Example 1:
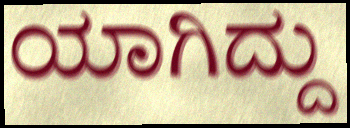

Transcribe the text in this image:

ಯಾಗಿದ್ದು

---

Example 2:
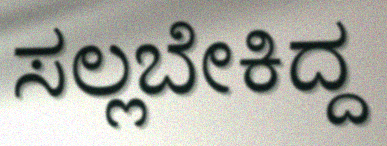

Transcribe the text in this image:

ಸಲ್ಲಬೇಕಿದ್ದ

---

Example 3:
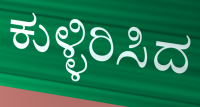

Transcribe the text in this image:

ಕುಳ್ಳಿರಿಸಿದ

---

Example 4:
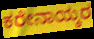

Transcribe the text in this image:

ಕರೇನಾಯ್ಕರ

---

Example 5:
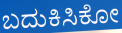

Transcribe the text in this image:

ಬದುಕಿಸಿಕೋ